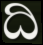
ದಿ